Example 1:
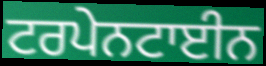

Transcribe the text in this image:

ਟਰਪੇਨਟਾਈਨ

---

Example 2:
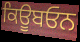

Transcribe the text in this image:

ਕਿਊਬਓਨ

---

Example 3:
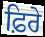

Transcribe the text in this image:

ਫ਼ਿਰੇ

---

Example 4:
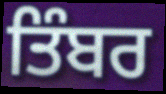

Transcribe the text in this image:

ਤਿੰਬਰ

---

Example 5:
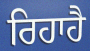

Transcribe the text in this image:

ਰਿਹਾਹੈ